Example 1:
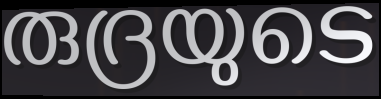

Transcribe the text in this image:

രുദ്രയുടെ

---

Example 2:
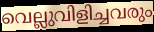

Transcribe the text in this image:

വെല്ലുവിളിച്ചവരും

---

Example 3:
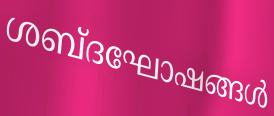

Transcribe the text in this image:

ശബ്ദഘോഷങ്ങൾ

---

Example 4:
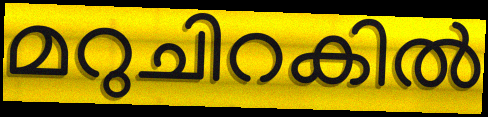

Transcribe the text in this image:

മറുചിറകിൽ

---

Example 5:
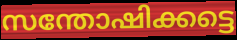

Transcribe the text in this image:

സന്തോഷിക്കട്ടെ